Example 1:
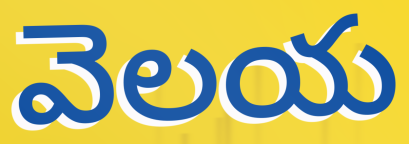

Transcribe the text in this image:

వెలయ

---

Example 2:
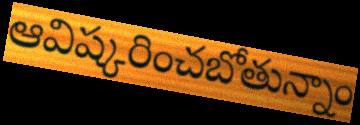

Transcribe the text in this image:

ఆవిష్కరించబోతున్నాం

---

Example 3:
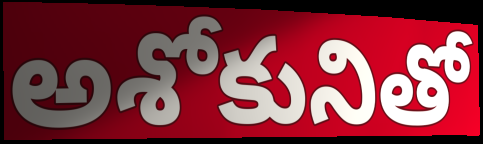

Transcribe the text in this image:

అశోకునితో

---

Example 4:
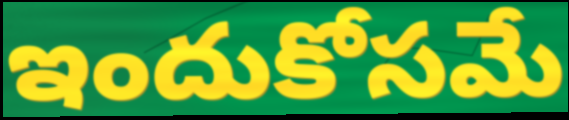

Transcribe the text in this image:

ఇందుకోసమే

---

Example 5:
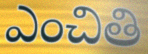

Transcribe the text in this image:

ఎంచితి